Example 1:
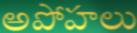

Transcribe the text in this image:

అపోహలు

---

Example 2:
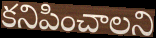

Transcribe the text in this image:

కనిపించాలని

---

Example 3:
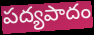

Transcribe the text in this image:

పద్యపాదం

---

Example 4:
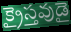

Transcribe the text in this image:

క్రైస్తవుడై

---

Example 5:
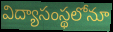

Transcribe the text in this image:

విద్యాసంస్థలోనూ